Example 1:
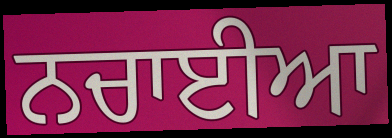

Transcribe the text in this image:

ਨਚਾਈਆ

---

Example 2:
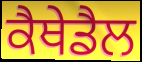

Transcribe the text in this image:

ਕੈਥੇਡੈਲ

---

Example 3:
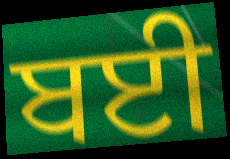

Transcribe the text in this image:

ਬਈ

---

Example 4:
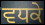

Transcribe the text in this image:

ਵਧਕੇ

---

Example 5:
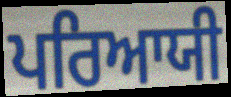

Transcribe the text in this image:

ਪਰਿਆਯੀ